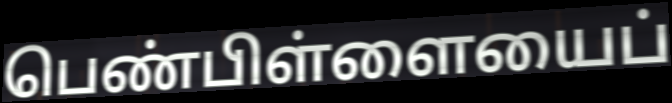
பெண்பிள்ளையைப்